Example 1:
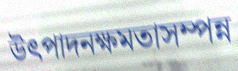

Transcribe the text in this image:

উৎপাদনক্ষমতাসম্পন্ন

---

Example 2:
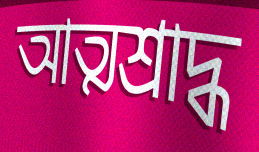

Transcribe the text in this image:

আত্মশ্রাদ্ধ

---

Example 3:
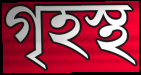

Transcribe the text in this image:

গৃহস্থ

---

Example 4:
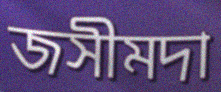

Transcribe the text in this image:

জসীমদা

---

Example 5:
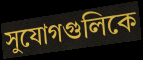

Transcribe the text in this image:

সুযোগগুলিকে